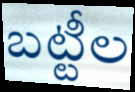
బట్టీల